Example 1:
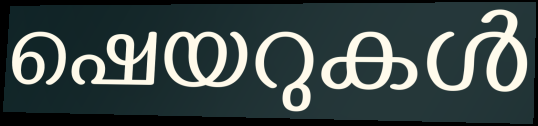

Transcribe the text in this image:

ഷെയറുകൾ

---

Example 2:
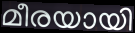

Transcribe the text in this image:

മീരയായി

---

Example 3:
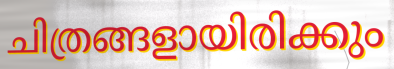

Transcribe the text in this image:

ചിത്രങ്ങളായിരിക്കും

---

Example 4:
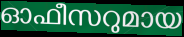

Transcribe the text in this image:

ഓഫീസറുമായ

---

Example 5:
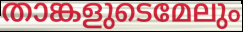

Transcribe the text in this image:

താങ്കളുടെമേലും